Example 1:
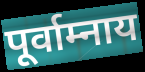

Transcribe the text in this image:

पूर्वाम्नाय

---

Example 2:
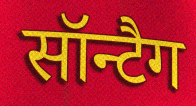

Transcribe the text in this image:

सॉन्टैग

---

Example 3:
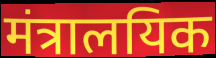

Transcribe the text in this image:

मंत्रालयिक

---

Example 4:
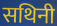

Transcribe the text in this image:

सथिनी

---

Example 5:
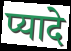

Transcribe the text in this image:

प्यादे